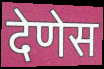
देणेस